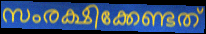
സംരക്ഷിക്കേണ്ടത്